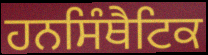
ਹਨਸਿੰਥੈਟਿਕ